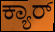
ಕ್ಯಾರ್